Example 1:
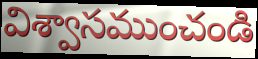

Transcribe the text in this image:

విశ్వాసముంచండి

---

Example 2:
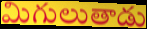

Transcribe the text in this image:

మిగులుతాడు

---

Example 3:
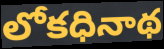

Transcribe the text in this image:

లోకధినాథ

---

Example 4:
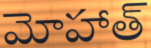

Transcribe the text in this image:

మోహాత్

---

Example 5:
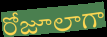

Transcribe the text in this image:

రోజూలాగా